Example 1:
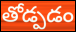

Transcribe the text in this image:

తోడ్పడం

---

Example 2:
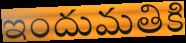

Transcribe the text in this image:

ఇందుమతికి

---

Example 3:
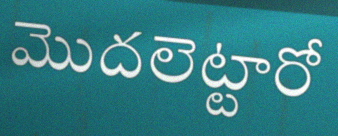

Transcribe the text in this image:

మొదలెట్టారో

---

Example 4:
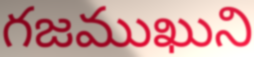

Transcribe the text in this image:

గజముఖుని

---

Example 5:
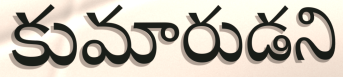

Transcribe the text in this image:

కుమారుడని